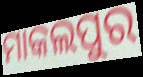
ମାକଲପୁର